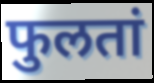
फुलतां